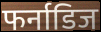
फर्नाडिज